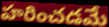
హరించడమే